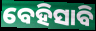
ବେହିସାବି